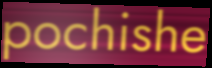
pochishe